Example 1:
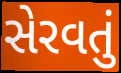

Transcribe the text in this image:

સેરવતું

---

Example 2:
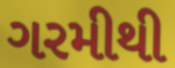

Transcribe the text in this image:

ગરમીથી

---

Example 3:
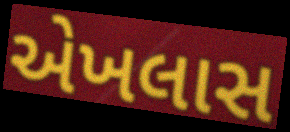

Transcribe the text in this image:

એખલાસ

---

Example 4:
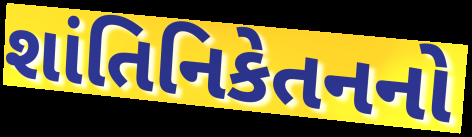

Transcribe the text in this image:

શાંતિનિકેતનનો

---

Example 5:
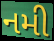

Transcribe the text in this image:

નમી